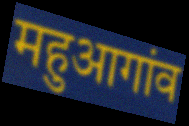
महुआगांव